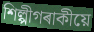
শিল্পীগৰাকীয়ে